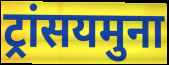
ट्रांसयमुना